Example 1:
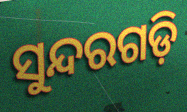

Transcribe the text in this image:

ସୁନ୍ଦରଗଡ଼ି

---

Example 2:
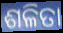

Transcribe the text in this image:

ଶଳିତା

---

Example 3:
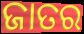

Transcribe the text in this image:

ଜାତର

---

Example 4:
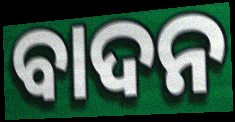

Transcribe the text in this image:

ବାଦନ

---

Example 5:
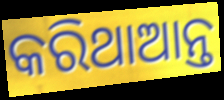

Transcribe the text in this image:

କରିଥାଆନ୍ତ